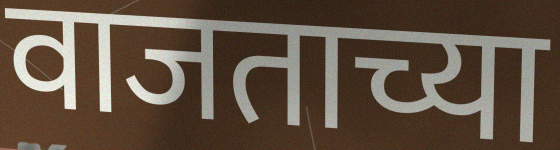
वाजताच्या